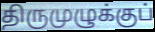
திருமுழுக்குப்